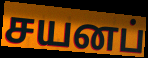
சயனப்